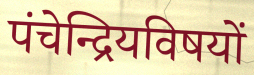
पंचेन्द्रियविषयों